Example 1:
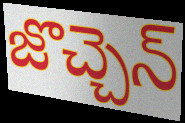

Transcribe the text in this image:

జొచ్చెన్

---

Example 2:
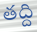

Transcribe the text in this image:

తద్ది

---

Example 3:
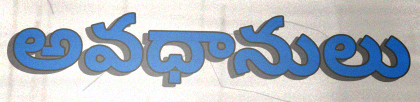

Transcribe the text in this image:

అవధానులు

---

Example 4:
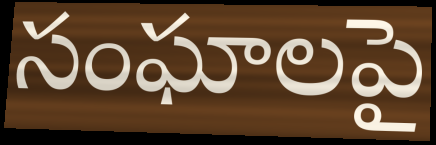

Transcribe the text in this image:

సంఘాలపై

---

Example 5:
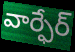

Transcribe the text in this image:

వార్ఫేర్